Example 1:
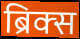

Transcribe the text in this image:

ब्रिक्‍स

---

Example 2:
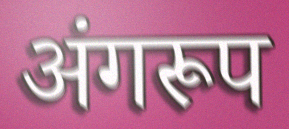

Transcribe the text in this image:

अंगरूप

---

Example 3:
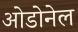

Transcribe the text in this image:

ओडोनेल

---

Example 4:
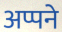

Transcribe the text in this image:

अप्पने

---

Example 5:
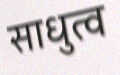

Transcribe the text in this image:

साधुत्व